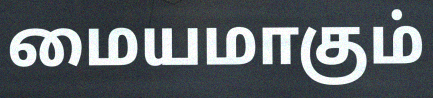
மையமாகும்